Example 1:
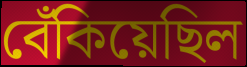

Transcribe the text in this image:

বেঁকিয়েছিল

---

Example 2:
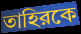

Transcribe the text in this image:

তাহিরকে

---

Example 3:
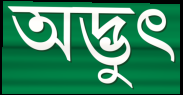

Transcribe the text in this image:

অদ্ভুৎ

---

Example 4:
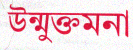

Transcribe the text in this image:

উন্মুক্তমনা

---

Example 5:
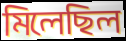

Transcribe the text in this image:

মিলেছিল